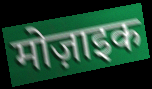
मोज़ाइक